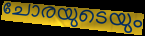
ചോരയുടെയും